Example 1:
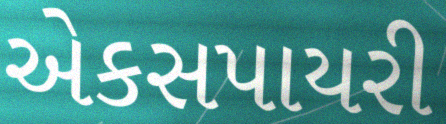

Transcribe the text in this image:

એકસપાયરી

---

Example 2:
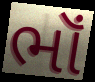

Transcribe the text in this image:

ભૉં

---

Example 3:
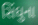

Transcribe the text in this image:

સિંઘુના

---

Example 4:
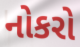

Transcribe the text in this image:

નોકરો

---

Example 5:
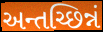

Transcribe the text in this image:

અન્તચ્છિન્નં